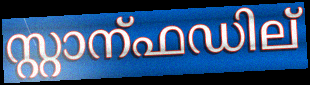
സ്റ്റാന്ഫഡില്